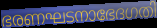
ഭരണഘടനാഭേദഗതി